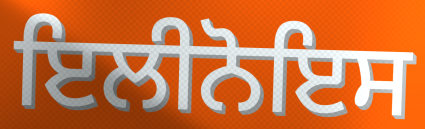
ਇਲੀਨੋਇਸ